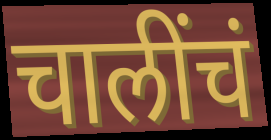
चालींचं